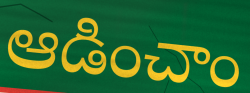
ఆడించాం